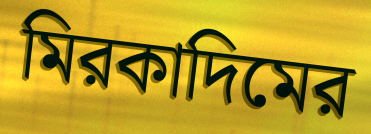
মিরকাদিমের